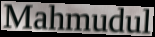
Mahmudul